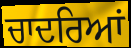
ਚਾਦਰਿਆਂ